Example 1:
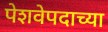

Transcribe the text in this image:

पेशवेपदाच्या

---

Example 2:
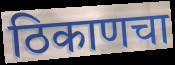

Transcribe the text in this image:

ठिकाणचा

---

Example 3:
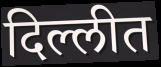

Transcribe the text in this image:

दिल्लीत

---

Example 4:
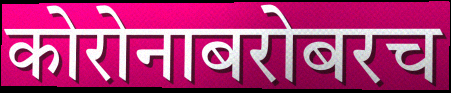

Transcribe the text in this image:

कोरोनाबरोबरच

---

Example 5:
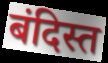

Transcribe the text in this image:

बंदिस्त